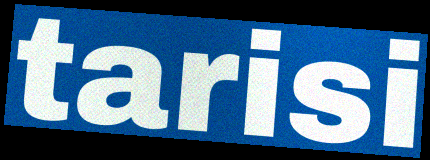
tarisi